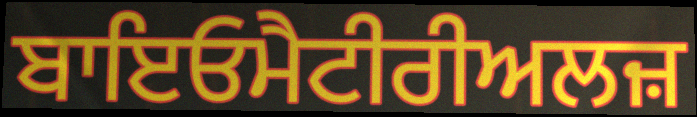
ਬਾਇਓਮੈਟੀਰੀਅਲਜ਼